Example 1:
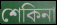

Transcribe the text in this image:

শেকিনা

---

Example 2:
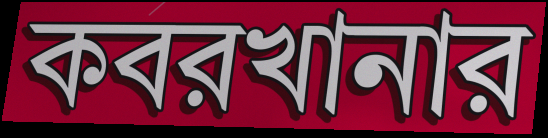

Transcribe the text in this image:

কবরখানার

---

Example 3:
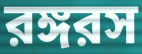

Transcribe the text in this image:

রঙ্গরস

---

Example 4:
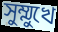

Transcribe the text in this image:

সুম্মুখে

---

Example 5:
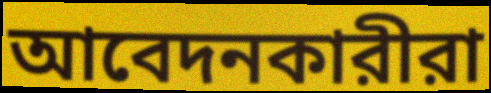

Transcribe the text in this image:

আবেদনকারীরা